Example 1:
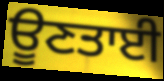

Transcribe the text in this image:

ਊਣਤਾਈ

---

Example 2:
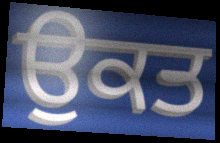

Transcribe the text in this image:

ਉਕਤ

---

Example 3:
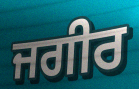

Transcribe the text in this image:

ਜਗੀਰ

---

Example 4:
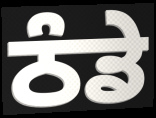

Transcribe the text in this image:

ਠੰਡੇ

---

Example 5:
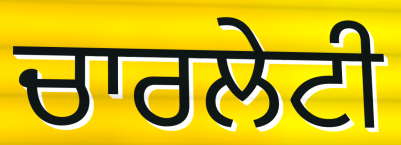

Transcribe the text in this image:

ਚਾਰਲੇਟੀ